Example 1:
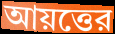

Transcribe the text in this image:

আয়ত্তের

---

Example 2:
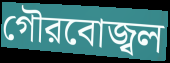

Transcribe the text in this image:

গৌরবোজ্বল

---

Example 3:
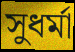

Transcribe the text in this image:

সুধর্মা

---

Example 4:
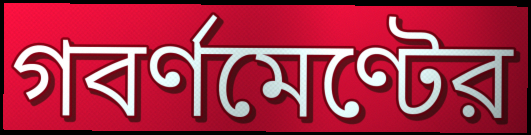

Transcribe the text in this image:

গবর্ণমেণ্টের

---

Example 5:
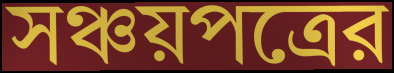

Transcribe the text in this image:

সঞ্চয়পত্রের